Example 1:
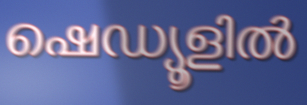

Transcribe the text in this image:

ഷെഡ്യൂളിൽ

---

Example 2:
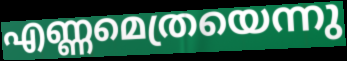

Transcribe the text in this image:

എണ്ണമെത്രയെന്നു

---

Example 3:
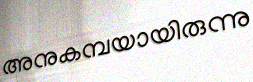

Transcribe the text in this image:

അനുകമ്പയായിരുന്നു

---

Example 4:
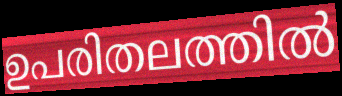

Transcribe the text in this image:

ഉപരിതലത്തിൽ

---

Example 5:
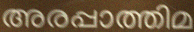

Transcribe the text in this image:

അരപ്പാത്തിമ